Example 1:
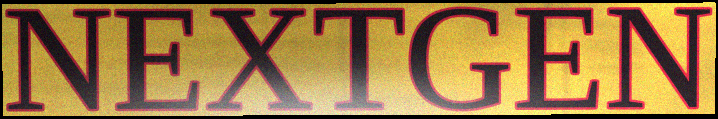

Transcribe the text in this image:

NEXTGEN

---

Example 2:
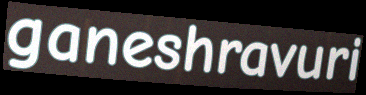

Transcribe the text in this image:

ganeshravuri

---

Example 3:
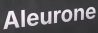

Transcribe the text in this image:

Aleurone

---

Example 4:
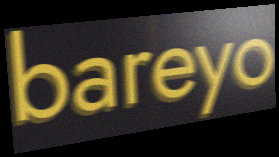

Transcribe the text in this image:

bareyo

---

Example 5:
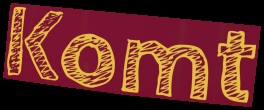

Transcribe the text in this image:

Komt